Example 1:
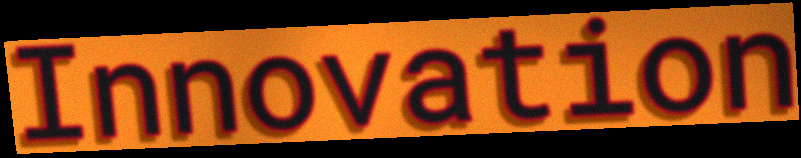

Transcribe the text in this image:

Innovation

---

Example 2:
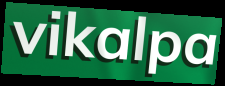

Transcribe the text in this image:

vikalpa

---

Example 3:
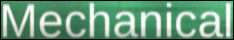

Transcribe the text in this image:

Mechanical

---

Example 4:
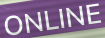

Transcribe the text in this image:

ONLINE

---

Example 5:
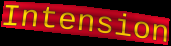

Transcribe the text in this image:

Intension